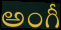
అంగీ